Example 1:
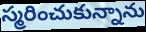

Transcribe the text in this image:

స్మరించుకున్నాను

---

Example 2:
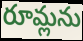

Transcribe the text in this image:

రూమ్లను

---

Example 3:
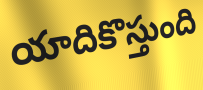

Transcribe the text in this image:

యాదికొస్తుంది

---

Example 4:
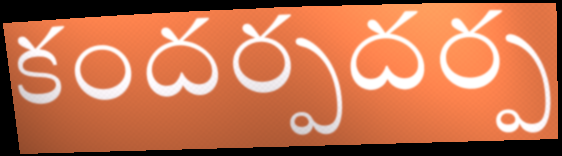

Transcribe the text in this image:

కందర్పదర్ప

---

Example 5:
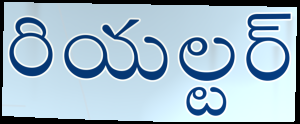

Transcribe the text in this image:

రియల్టర్